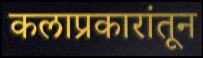
कलाप्रकारांतून